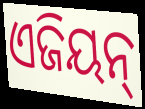
ଏଜିୟନ୍